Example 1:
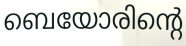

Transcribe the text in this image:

ബെയോരിന്റെ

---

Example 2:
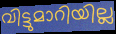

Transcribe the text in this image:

വിട്ടുമാറിയില്ല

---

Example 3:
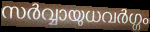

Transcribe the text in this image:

സർവ്വായുധവർഗ്ഗം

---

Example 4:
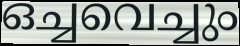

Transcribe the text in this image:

ഒച്ചവെച്ചും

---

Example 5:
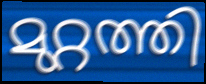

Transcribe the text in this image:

മുറ്റത്തി